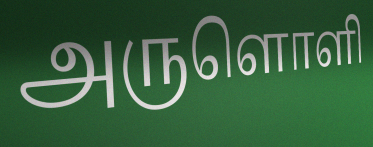
அருளொளி